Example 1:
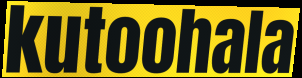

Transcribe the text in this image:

kutoohala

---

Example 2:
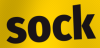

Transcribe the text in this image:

sock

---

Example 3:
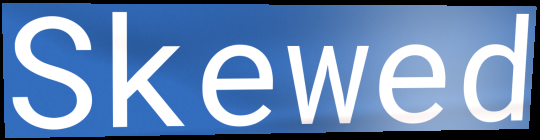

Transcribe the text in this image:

Skewed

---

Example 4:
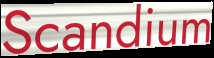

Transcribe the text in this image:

Scandium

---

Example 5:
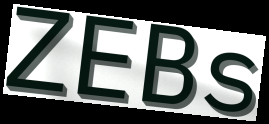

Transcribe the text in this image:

ZEBs